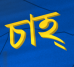
চাহ্